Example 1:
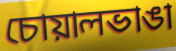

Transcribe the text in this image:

চোয়ালভাঙা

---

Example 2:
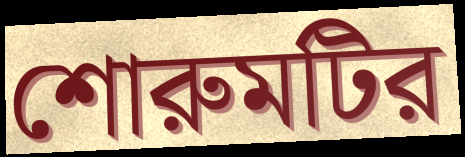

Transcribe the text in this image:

শোরুমটির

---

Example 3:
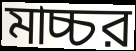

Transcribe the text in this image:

মাচ্চর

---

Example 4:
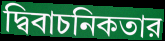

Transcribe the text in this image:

দ্বিবাচনিকতার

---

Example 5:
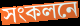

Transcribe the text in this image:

সংকলনে